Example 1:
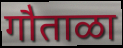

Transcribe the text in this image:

गौताळा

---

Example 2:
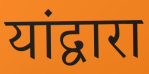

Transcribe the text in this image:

यांद्वारा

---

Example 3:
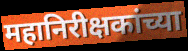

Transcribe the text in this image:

महानिरीक्षकांच्या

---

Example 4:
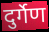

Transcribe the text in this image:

दुर्गेण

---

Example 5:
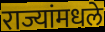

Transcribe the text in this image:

राज्यांमधले